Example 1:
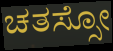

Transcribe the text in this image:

ಚತಸ್ಸೋ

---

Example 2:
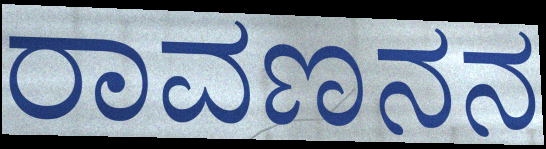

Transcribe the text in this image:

ರಾವಣನನ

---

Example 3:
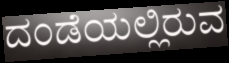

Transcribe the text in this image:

ದಂಡೆಯಲ್ಲಿರುವ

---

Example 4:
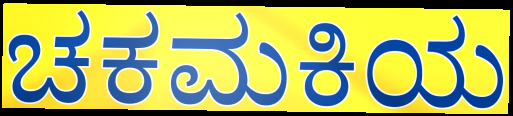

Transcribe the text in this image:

ಚಕಮಕಿಯ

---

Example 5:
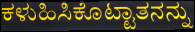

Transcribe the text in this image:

ಕಳುಹಿಸಿಕೊಟ್ಟಾತನನ್ನು